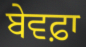
ਬੇਵਫ਼ਾ